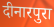
दीनारपुरा